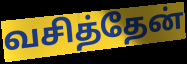
வசித்தேன்